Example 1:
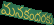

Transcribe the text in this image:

మనకందరకు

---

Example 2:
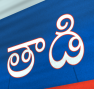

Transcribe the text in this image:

తాడి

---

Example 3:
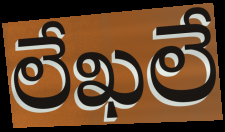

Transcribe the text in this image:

లేఖలే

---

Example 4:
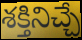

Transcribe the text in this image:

శక్తినిచ్చే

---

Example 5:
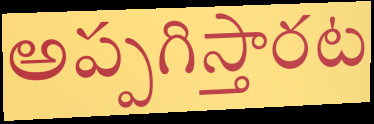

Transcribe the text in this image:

అప్పగిస్తారట